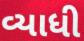
વ્યાધી